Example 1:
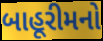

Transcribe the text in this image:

બાહૂરીમનો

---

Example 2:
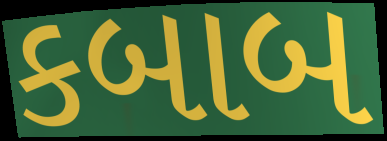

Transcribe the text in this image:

કબાબ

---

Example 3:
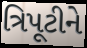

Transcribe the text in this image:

ત્રિપૂટીને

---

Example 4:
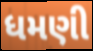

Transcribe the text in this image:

ધમણી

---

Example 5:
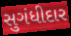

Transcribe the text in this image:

સુગંધીદાર